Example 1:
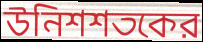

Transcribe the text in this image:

উনিশশতকের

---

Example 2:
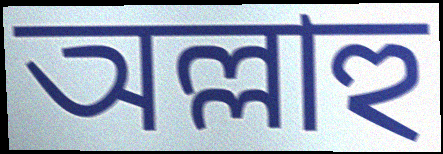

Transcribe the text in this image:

অল্লাহু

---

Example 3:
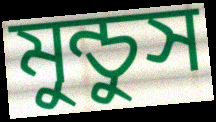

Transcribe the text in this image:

মুন্ডুস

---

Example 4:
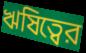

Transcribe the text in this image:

ঋষিত্বের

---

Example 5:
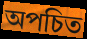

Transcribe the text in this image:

অপচিত